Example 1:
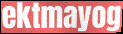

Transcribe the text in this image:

ektmayog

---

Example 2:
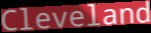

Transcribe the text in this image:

Cleveland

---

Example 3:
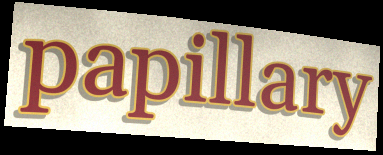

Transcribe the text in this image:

papillary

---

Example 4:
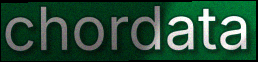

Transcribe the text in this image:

chordata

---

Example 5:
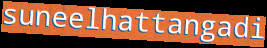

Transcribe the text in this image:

suneelhattangadi